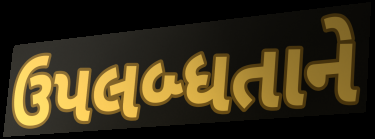
ઉપલબ્ધતાને